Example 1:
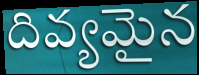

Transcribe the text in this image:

దివ్యమైన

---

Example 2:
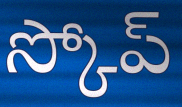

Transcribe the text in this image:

స్కోప్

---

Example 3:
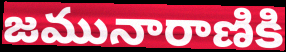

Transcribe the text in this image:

జమునారాణికి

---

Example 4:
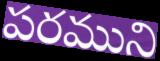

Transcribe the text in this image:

పరముని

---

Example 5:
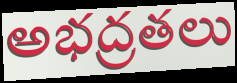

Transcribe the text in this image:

అభద్రతలు